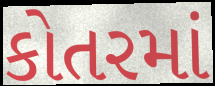
કોતરમાં